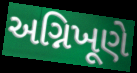
અગ્નિખૂણે